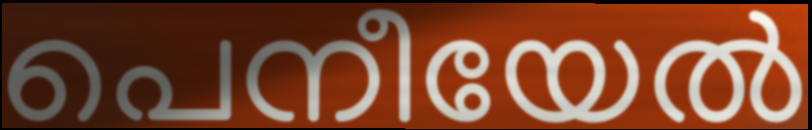
പെനീയേൽ